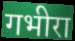
गभीरा